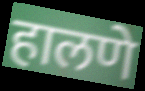
हालणे